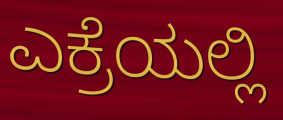
ಎಕ್ರೆಯಲ್ಲಿ